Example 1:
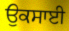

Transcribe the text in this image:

ਉਕਸਾਈ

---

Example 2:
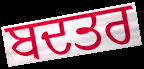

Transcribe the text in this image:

ਬਦਤਰ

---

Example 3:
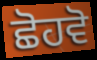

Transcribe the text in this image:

ਛੋਹਵੋ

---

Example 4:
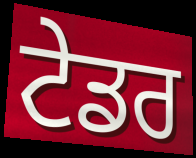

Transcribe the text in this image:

ਟੇਡਰ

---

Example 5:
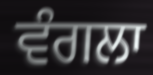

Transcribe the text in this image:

ਵੰਗਲਾ